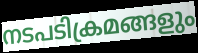
നടപടിക്രമങ്ങളും